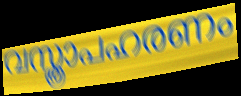
വസ്ത്രാപഹരണം